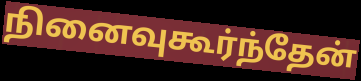
நினைவுகூர்ந்தேன்